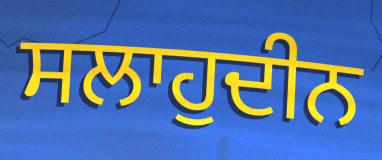
ਸਲਾਹੁਦੀਨ